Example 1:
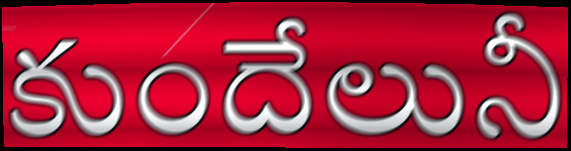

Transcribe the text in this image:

కుందేలునీ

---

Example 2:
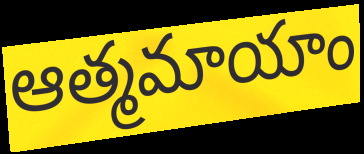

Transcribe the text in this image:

ఆత్మమాయాం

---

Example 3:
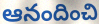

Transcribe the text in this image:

ఆనందించి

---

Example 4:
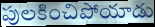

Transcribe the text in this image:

పులకించిపోయాడు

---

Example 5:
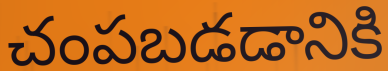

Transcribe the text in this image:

చంపబడడానికి